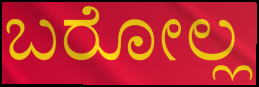
ಬರೋಲ್ಲ